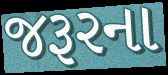
જરૂરના